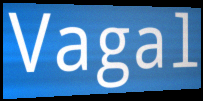
Vagal